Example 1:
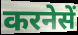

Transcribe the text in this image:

करनेसें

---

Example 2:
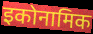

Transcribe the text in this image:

इकोनामिक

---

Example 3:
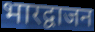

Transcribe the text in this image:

भारद्वाजन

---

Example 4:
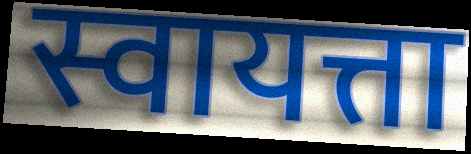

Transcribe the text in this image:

स्वायत्ता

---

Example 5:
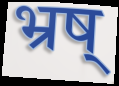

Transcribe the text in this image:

भ्रष्